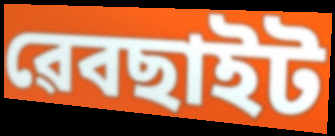
ৱেবছাইট